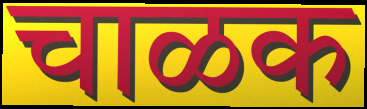
चाळक